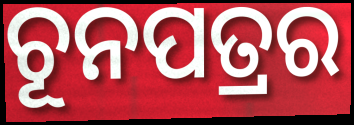
ଚୂନପତ୍ରର